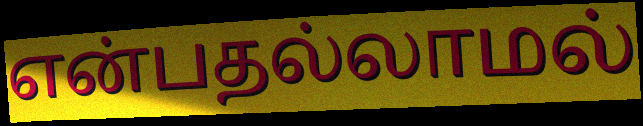
என்பதல்லாமல்